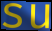
su